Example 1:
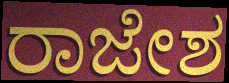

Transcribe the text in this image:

ರಾಜೇಶ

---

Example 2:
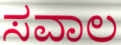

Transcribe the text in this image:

ಸವಾಲ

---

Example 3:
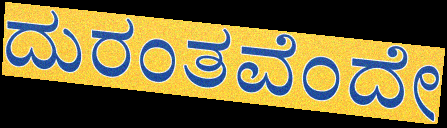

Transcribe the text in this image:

ದುರಂತವೆಂದೇ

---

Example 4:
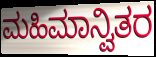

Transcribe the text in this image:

ಮಹಿಮಾನ್ವಿತರ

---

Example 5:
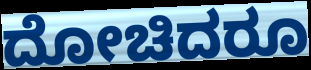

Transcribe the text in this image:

ದೋಚಿದರೂ